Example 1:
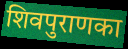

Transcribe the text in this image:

शिवपुराणका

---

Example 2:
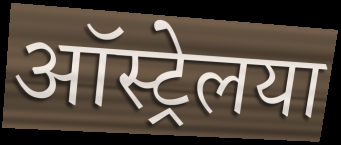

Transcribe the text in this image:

ऑस्ट्रेलया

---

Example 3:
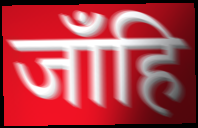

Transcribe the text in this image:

जाँहि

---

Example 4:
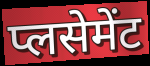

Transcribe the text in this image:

प्लसेमेंट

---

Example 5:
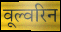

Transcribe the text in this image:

वूल्वरिन